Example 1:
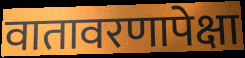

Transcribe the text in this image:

वातावरणापेक्षा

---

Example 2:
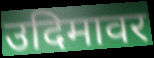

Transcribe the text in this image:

उदिमावर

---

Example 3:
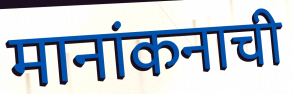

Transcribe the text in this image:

मानांकनाची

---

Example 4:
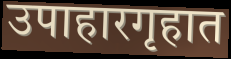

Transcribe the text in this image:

उपाहारगृहात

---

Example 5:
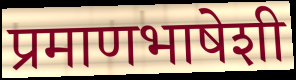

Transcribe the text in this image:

प्रमाणभाषेशी